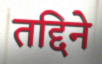
तद्दिने